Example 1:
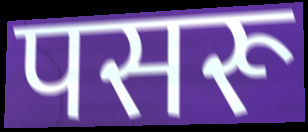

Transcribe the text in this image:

पसरू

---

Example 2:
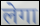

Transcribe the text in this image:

लेगा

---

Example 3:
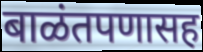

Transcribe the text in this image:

बाळंतपणासह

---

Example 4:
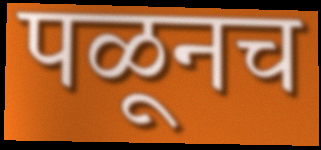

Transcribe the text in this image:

पळूनच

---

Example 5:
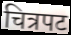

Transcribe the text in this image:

चित्रपट